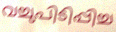
വച്ചുപിടിപ്പിച്ച